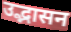
उद्भासन